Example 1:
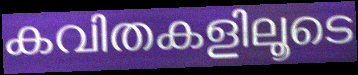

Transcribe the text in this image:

കവിതകളിലൂടെ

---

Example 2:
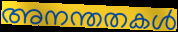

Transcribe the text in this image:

അനന്തതകൾ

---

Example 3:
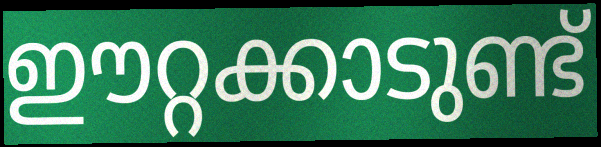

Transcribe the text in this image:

ഈറ്റക്കാടുണ്ട്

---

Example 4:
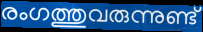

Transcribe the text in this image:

രംഗത്തുവരുന്നുണ്ട്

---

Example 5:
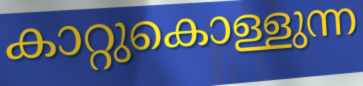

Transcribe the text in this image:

കാറ്റുകൊള്ളുന്ന